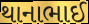
થાનાભાઈ